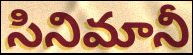
సినిమానీ